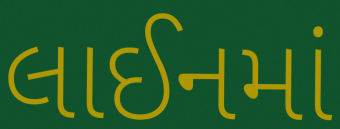
લાઈનમાં